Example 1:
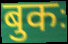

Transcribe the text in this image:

बुकः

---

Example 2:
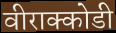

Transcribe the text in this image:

वीराक्कोडी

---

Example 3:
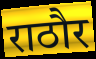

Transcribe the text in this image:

राठौर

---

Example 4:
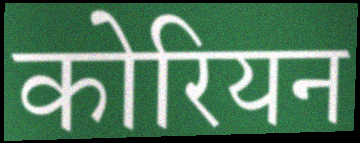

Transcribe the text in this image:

कोरियन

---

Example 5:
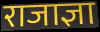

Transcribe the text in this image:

राजाज्ञा